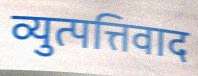
व्युत्पत्तिवाद